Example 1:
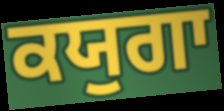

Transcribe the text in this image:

ਕਯੁਗਾ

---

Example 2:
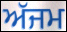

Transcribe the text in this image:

ਅੱਜਮ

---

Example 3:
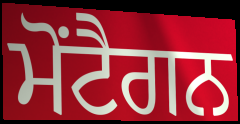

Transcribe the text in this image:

ਮੋਂਟੈਗਨ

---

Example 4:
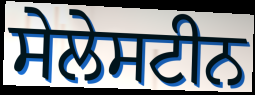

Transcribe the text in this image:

ਸੇਲੇਸਟੀਨ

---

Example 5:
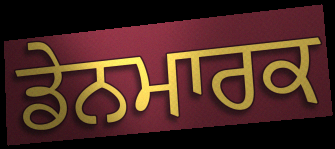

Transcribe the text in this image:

ਡੇਨਮਾਰਕ